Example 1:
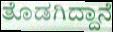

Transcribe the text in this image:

ತೊಡಗಿದ್ದಾನೆ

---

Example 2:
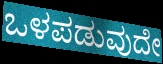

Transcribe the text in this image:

ಒಳಪಡುವುದೇ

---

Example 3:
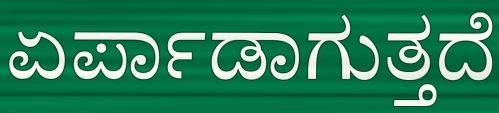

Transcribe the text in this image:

ಏರ್ಪಾಡಾಗುತ್ತದೆ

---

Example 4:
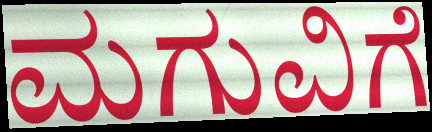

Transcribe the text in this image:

ಮಗುವಿಗೆ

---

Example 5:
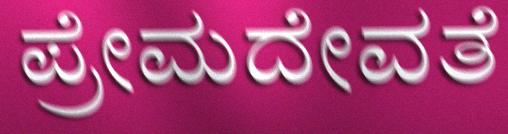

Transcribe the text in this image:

ಪ್ರೇಮದೇವತೆ